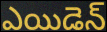
ఎయిడెన్